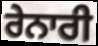
ਰੇਨਾਰੀ